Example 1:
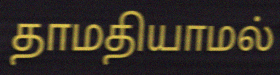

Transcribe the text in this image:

தாமதியாமல்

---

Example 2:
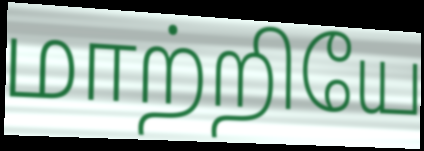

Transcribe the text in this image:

மாற்றியே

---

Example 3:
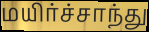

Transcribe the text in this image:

மயிர்ச்சாந்து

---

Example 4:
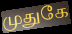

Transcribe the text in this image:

முதுகே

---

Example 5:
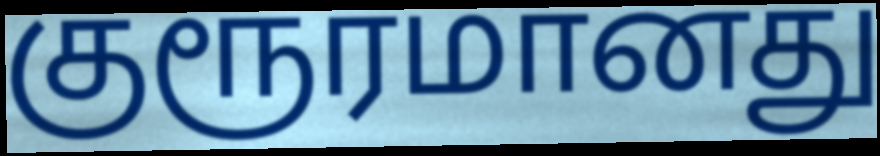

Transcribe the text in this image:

குரூரமானது